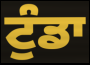
ਟੁੰਡਾ